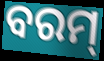
ବରମ୍